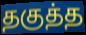
தகுத்த